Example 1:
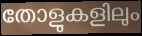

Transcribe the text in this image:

തോളുകളിലും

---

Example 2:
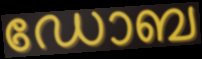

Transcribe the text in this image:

ഡോബ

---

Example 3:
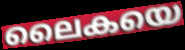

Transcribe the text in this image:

ലൈകയെ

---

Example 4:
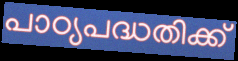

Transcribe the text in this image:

പാഠ്യപദ്ധതിക്ക്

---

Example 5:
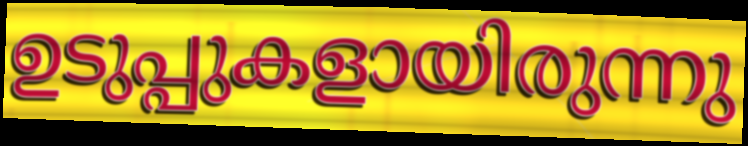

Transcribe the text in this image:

ഉടുപ്പുകളായിരുന്നു